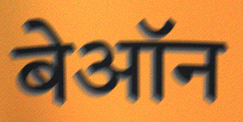
बेऑन